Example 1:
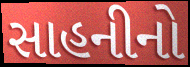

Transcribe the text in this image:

સાહનીનો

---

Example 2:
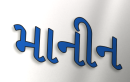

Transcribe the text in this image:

માનીન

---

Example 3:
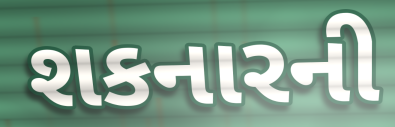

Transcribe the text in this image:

શકનારની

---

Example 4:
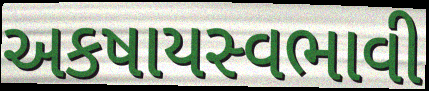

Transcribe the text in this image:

અકષાયસ્વભાવી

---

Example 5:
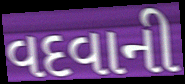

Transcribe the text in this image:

વદવાની